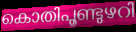
കൊതിപൂണ്ടുഴറി